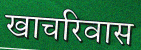
खाचरिवास